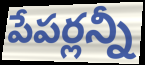
పేపర్లన్నీ